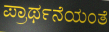
ಪ್ರಾರ್ಥನೆಯಂತೆ